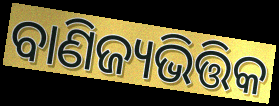
ବାଣିଜ୍ୟଭିତ୍ତିକ